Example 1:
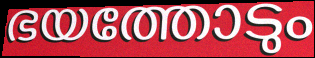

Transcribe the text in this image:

ഭയത്തോടും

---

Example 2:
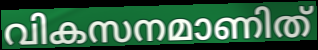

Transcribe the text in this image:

വികസനമാണിത്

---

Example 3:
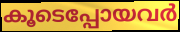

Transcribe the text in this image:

കൂടെപ്പോയവർ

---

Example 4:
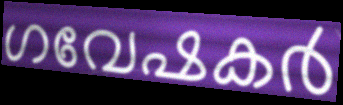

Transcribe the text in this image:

ഗവേഷകർ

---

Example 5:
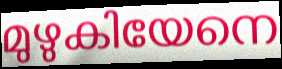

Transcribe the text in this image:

മുഴുകിയേനെ